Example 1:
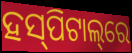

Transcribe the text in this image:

ହସ୍‌ପିଟାଲ୍‌ରେ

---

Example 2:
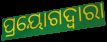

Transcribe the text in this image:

ପ୍ରୟୋଗଦ୍ୱାରା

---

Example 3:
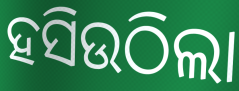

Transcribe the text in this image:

ହସିଉଠିଲା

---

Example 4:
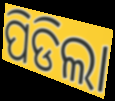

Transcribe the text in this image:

ପିଡିଲା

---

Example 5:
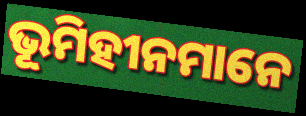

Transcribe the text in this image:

ଭୂମିହୀନମାନେ